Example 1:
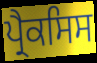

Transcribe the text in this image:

ਪ੍ਰੈਕਸਿਸ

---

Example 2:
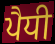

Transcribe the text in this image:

ਪੈਧੀ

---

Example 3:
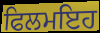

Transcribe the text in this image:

ਫਿਲਮਇਹ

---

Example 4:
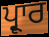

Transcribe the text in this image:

ਪ੍ਰ੍ਵਾਰ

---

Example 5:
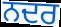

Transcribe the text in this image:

ਨਦਰ